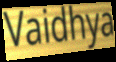
Vaidhya